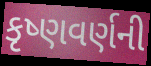
કૃષ્ણવર્ણની